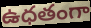
ఉధతంగా